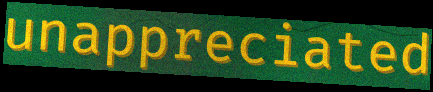
unappreciated